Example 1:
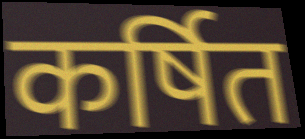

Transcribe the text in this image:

कर्षित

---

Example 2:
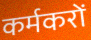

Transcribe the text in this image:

कर्मकरों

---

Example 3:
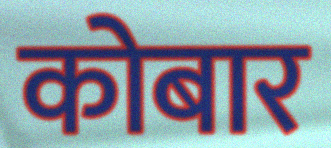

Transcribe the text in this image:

कोबार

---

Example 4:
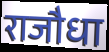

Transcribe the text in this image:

राजौधा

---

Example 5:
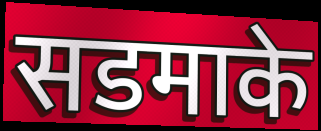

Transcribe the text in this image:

सडमाके